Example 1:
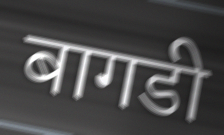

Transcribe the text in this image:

बागडी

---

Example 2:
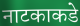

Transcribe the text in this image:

नाटकाकडे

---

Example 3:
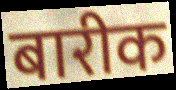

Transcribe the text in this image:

बारीक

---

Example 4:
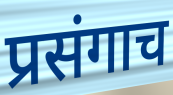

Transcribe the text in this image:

प्रसंगाच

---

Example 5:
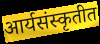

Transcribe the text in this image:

आर्यसंस्कृतीत